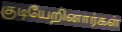
குடியேறினார்கள்